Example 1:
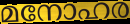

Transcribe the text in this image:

മനോഹര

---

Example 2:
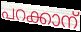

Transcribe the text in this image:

പറക്കാന്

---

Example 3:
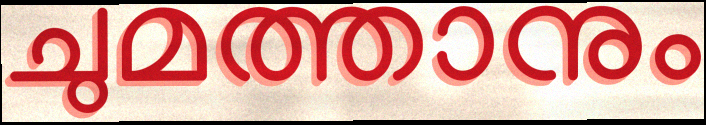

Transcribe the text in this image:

ചുമത്താനും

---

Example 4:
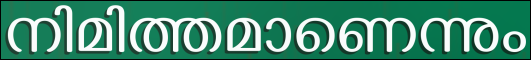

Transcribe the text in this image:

നിമിത്തമാണെന്നും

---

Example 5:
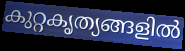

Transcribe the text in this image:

കുറ്റകൃത്യങ്ങളിൽ